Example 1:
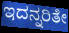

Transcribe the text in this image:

ಇದನ್ನರಿತೇ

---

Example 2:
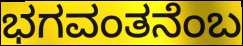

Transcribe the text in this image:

ಭಗವಂತನೆಂಬ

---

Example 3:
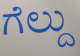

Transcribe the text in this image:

ಗೆಲ್ದು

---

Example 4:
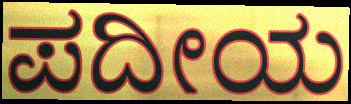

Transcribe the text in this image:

ಪದೀಯ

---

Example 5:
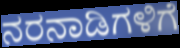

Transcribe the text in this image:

ನರನಾಡಿಗಳಿಗೆ